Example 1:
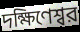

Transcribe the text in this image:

দক্ষিণেশ্বর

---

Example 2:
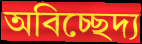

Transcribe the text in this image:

অবিচ্ছেদ্য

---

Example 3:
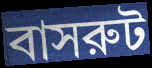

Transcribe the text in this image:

বাসরুট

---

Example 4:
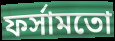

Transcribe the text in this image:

ফর্সামতো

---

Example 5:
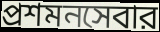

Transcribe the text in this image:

প্রশমনসেবার